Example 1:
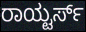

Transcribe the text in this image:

ರಾಯ್ಟರ್ಸ್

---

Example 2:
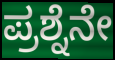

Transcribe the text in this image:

ಪ್ರಶ್ನೆನೇ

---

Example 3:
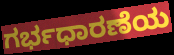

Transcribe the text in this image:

ಗರ್ಭಧಾರಣೆಯ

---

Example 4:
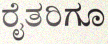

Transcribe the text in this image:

ರೈತರಿಗೂ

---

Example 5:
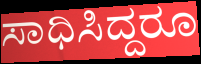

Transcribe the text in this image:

ಸಾಧಿಸಿದ್ದರೂ